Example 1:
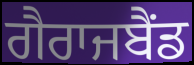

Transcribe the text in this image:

ਗੈਰਾਜਬੈਂਡ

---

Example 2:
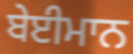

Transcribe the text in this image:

ਬੇਈਮਾਨ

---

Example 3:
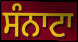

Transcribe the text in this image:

ਸੰਨਾਟਾ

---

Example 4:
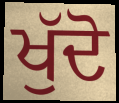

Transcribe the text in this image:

ਖੁੱਦੋ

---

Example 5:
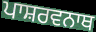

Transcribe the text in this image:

ਪਾਸ਼ਰਵਨਾਥ